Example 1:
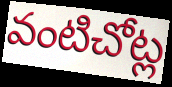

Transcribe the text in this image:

వంటిచోట్ల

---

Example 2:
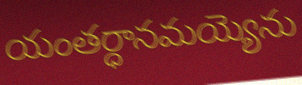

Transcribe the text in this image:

యంతర్ధానమయ్యెను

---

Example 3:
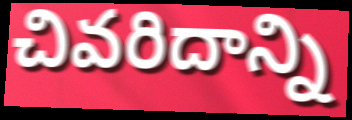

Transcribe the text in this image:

చివరిదాన్ని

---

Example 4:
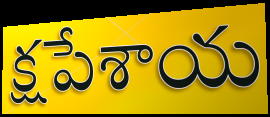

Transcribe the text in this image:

క్షపేశాయ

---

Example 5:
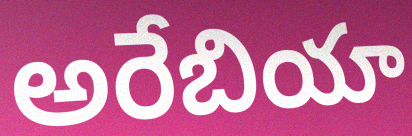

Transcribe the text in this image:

అరేబియా